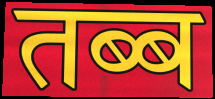
तब्ब